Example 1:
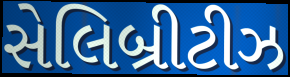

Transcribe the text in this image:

સેલિબ્રીટીઝ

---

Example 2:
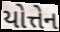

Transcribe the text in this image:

યોત્તેન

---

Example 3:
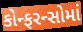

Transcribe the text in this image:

કોન્ફરન્સોમાં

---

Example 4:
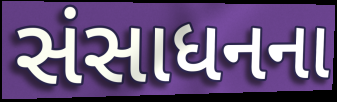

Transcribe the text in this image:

સંસાધનના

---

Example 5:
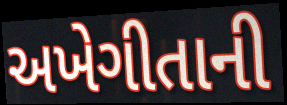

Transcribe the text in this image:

અખેગીતાની